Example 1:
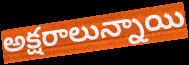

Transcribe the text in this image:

అక్షరాలున్నాయి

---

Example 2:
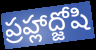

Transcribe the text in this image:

ప్రహ్లాద్జోషి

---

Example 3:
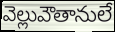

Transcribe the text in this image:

వెల్లువౌతానులే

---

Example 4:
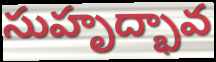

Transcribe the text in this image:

సుహృద్భావ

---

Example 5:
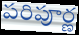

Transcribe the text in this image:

పరిపూర్ణ